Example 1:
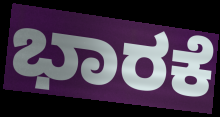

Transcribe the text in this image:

ಭಾರಕೆ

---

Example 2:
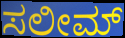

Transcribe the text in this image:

ಸಲೀಮ್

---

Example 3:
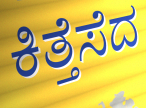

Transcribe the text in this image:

ಕಿತ್ತೆಸೆದ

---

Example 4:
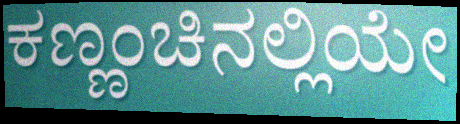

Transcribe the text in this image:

ಕಣ್ಣಂಚಿನಲ್ಲಿಯೇ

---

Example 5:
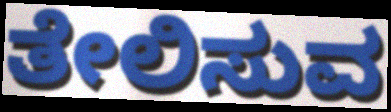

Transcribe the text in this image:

ತೇಲಿಸುವ